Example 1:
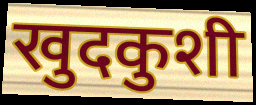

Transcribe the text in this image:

खुदकुशी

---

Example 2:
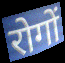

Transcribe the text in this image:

रोगों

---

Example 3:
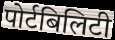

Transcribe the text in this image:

पोर्टबिलिटी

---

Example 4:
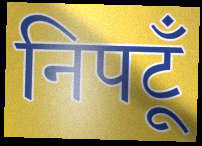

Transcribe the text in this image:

निपटूँ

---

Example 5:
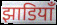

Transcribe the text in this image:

झाडियाँ